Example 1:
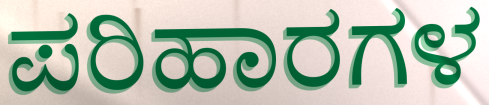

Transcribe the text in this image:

ಪರಿಹಾರಗಳ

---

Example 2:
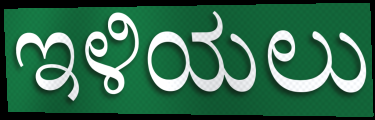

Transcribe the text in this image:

ಇಳಿಯಲು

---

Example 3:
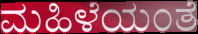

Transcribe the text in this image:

ಮಹಿಳೆಯಂತೆ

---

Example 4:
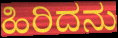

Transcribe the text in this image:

ಹಿರಿದನು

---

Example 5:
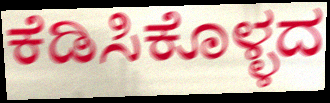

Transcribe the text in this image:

ಕೆಡಿಸಿಕೊಳ್ಳದ